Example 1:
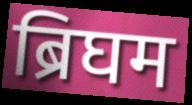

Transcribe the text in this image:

ब्रिघम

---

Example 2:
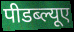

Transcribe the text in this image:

पीडब्ल्यूए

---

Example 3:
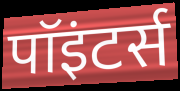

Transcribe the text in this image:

पॉइंटर्स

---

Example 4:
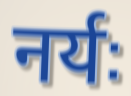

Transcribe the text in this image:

नर्यः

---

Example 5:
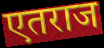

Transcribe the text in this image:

एतराज